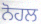
ਨੋਹਲ